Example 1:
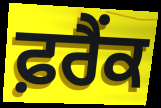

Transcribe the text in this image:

ਫ਼ਰੈਂਕ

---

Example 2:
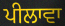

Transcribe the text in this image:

ਪੀਲਾਵਾ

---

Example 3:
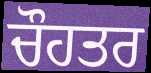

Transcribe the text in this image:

ਚੌਹਤਰ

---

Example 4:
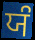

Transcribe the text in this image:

ਯੰ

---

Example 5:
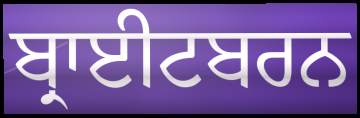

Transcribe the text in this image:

ਬ੍ਰਾਈਟਬਰਨ